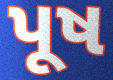
પૂષ